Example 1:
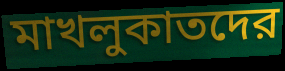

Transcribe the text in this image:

মাখলুকাতদের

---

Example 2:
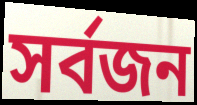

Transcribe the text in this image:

সর্বজন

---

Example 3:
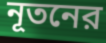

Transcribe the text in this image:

নূতনের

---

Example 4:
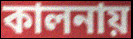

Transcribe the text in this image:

কালনায়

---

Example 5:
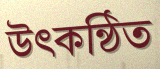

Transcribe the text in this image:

উৎকন্ঠিত